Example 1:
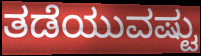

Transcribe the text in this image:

ತಡೆಯುವಷ್ಟು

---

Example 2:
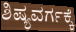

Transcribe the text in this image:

ಶಿಷ್ಯವರ್ಗಕ್ಕೆ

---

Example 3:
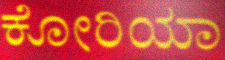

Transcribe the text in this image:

ಕೋರಿಯಾ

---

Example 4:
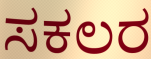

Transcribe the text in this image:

ಸಕಲರ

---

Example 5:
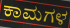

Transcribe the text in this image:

ಕಾಮಗಳ